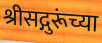
श्रीसद्गुरूंच्या